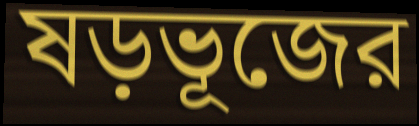
ষড়ভূজের